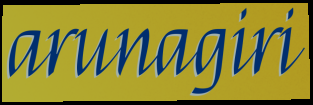
arunagiri